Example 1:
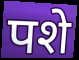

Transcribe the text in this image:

पशे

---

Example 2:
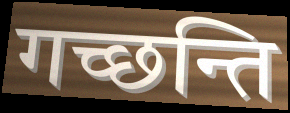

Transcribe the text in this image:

गच्छन्ति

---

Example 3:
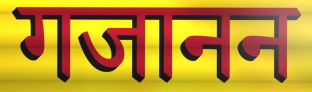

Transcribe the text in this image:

गजानन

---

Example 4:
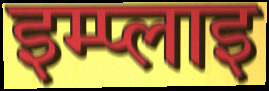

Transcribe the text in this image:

इम्प्लाइ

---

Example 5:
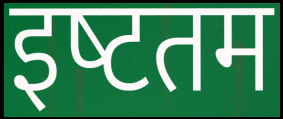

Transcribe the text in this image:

इष्‍टतम